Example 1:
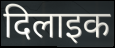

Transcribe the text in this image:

दिलाइक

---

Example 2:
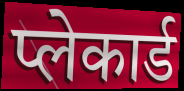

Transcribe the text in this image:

प्लेकार्ड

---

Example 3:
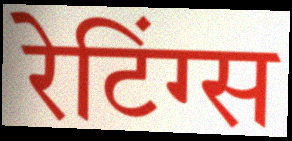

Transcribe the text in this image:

रेटिंग्स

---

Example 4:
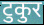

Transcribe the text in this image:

टुकुर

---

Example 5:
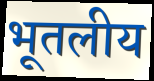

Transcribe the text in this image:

भूतलीय